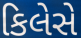
કિલેસે